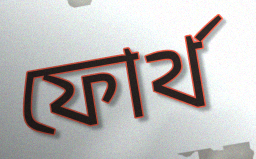
ফোর্থ